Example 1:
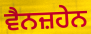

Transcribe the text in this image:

ਵੈਨਜ਼ਹੇਨ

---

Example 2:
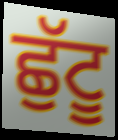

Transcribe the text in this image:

ਛੁੱਟੂ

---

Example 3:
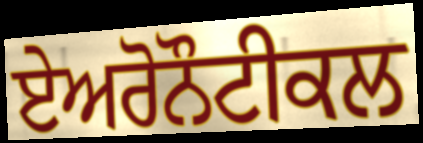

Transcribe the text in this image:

ਏਅਰੋਨੌਟੀਕਲ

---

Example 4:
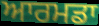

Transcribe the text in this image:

ਆਰਮਡਾ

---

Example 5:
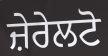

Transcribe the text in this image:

ਜ਼ੇਰੇਲਟੋ